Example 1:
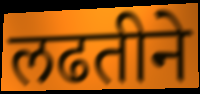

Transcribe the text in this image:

लढतीने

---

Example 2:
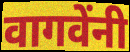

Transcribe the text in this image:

वागवेंनी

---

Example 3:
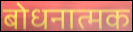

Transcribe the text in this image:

बोधनात्मक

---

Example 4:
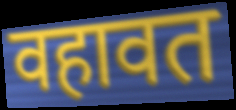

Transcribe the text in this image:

वहावत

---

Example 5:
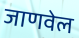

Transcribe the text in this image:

जाणवेल